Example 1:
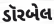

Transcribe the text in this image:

ડૉરબેલ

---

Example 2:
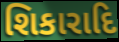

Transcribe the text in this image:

શિકારાદિ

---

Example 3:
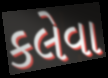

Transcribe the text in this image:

કલેવા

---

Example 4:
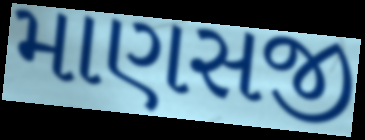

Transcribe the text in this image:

માણસજી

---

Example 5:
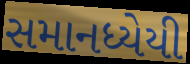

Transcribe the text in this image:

સમાનધ્યેયી